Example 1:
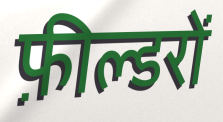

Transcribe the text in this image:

फ़ील्डरों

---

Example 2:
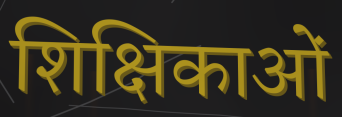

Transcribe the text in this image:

शिक्षिकाओं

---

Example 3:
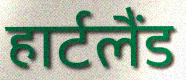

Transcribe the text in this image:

हार्टलैंड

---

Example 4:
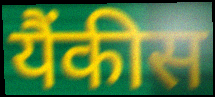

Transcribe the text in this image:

यैंकीस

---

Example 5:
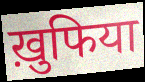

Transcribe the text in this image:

ख़ुफिया